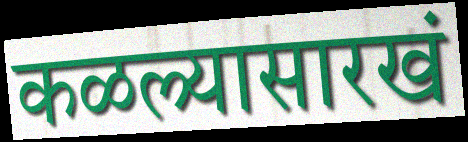
कळल्यासारखं